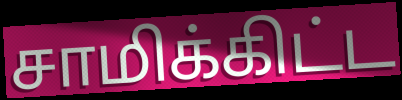
சாமிக்கிட்ட